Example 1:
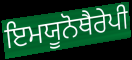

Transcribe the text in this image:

ਇਮਯੂਨੋਥੈਰੇਪੀ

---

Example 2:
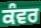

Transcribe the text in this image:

ਕੰਵਰ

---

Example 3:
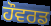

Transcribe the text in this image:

ਹੌਵਰਡ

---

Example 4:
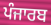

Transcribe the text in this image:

ਪੰਜਾਰਬ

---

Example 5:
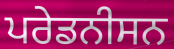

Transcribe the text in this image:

ਪਰੇਡਨੀਸਨ